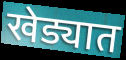
खेड्यात